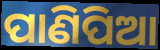
ପାଣିପିଆ